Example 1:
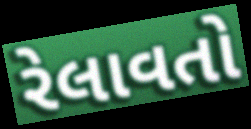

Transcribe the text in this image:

રેલાવતો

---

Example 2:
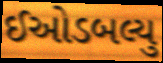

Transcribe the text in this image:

ઈઓડબલ્યુ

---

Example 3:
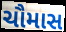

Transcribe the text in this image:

ચૌમાસ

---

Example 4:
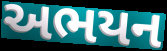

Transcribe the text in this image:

અભયન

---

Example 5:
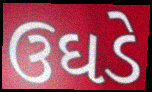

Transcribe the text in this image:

ઉઘડે